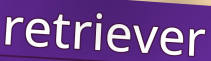
retriever